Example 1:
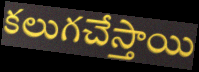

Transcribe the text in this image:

కలుగచేస్తాయి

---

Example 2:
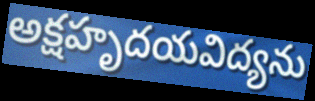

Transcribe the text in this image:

అక్షహృదయవిద్యను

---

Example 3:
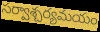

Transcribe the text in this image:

సర్వాశ్చర్యమయం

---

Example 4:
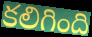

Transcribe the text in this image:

కలిగింది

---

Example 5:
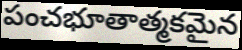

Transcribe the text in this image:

పంచభూతాత్మకమైన